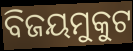
ବିଜୟମୁକୁଟ